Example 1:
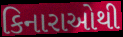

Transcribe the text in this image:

કિનારાઓથી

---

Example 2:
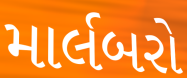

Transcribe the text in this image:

માર્લબરો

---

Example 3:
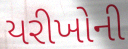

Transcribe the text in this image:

યરીખોની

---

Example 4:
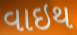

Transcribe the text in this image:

વાઇથ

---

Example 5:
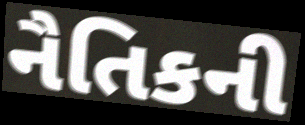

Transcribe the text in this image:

નૈતિકની